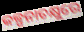
କଳ୍ପନାଚକ୍ଷୁରେ